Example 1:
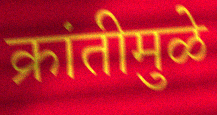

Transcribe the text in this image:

क्रांतीमुळे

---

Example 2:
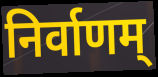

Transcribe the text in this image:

निर्वाणम्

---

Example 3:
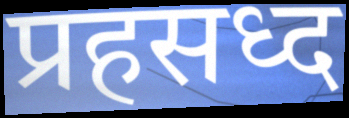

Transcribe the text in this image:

प्रहसध्द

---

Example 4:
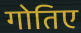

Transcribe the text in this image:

गोतिए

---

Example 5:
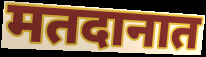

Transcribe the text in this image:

मतदानात